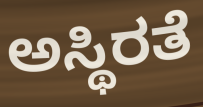
ಅಸ್ಥಿರತೆ